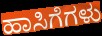
ಹಾಸಿಗೆಗಳು